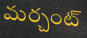
మర్చంట్